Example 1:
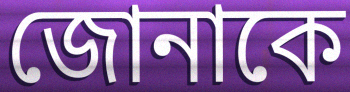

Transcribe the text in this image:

জোনাকে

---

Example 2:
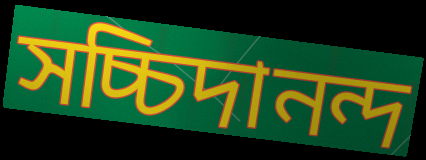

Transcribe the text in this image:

সচ্চিদানন্দ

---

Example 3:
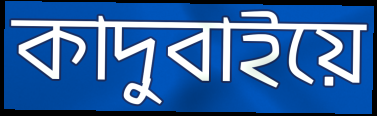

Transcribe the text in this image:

কাদুবাইয়ে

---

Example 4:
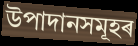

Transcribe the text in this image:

উপাদানসমূহৰ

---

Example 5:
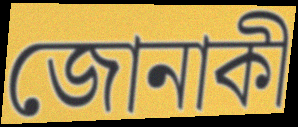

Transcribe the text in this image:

জোনাকী